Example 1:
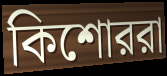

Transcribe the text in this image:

কিশোররা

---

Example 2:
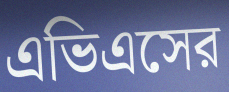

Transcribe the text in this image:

এভিএসের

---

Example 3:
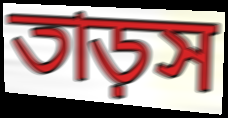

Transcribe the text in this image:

তাড়স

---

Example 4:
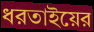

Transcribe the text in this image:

ধরতাইয়ের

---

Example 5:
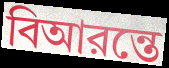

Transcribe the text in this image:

বিআরন্তে